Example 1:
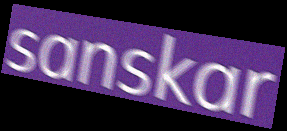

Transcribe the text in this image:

sanskar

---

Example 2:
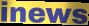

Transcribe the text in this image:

inews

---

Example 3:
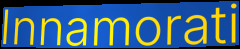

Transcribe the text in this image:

Innamorati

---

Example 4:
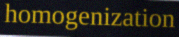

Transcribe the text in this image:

homogenization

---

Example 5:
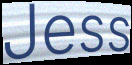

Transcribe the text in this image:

Jess